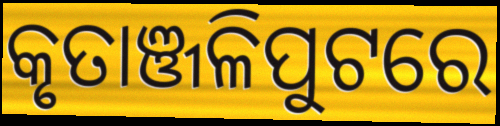
କୃତାଞ୍ଜଳିପୁଟରେ